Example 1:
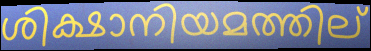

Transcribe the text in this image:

ശിക്ഷാനിയമത്തില്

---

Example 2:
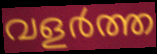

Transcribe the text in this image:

വളർത്ത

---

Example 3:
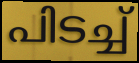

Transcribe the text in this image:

പിടച്ച്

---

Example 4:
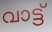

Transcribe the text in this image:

വാട്ട്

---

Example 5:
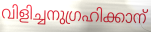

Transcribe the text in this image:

വിളിച്ചനുഗ്രഹിക്കാന്